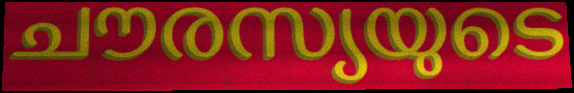
ചൗരസ്യയുടെ